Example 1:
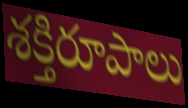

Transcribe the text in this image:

శక్తిరూపాలు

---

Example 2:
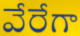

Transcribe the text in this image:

వేరేగా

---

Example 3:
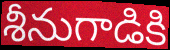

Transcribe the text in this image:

శీనుగాడికి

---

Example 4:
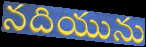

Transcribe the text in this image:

నదియును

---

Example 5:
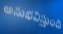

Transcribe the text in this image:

అనుభవిస్తుంది